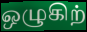
ஒழுகிற்